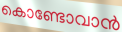
കൊണ്ടോവാൻ